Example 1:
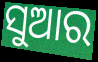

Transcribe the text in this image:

ସୁଆର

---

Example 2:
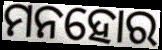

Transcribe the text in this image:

ମନହୋର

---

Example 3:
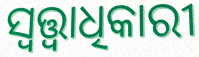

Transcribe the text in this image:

ସ୍ବତ୍ତ୍ବାଧିକାରୀ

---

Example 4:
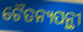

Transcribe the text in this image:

ଚୈତନ୍ୟପନ୍ଥୀ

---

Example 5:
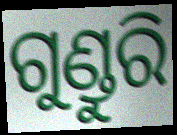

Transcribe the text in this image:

ଗୁଣ୍ଡୁରି